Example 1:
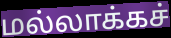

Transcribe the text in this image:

மல்லாக்கச்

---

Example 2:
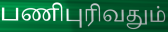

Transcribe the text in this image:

பணிபுரிவதும்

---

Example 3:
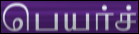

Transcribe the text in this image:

பெயர்ச்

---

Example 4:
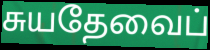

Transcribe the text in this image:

சுயதேவைப்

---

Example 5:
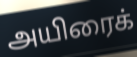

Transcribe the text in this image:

அயிரைக்